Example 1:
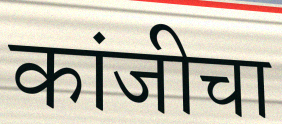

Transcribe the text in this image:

कांजीचा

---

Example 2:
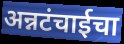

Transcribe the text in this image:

अन्नटंचाईचा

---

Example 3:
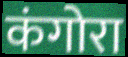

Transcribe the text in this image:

कंगोरा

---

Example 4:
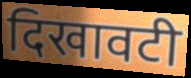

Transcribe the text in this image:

दिखावटी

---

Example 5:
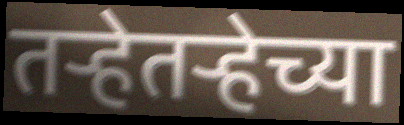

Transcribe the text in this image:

तऱ्हेतऱ्हेच्या